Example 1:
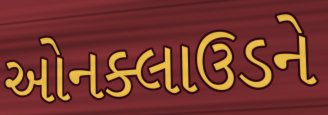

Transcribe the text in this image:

ઓનક્લાઉડને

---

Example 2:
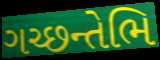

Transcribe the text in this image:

ગચ્છન્તેભિ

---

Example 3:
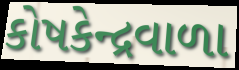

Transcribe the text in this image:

કોષકેન્દ્રવાળા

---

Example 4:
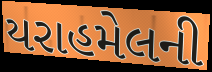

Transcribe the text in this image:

યરાહમેલની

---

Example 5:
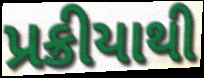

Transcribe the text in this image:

પ્રક્રીયાથી